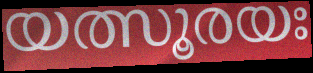
യത്സൂരയഃ